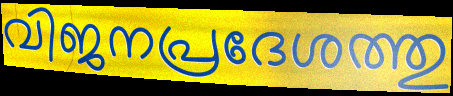
വിജനപ്രദേശത്തു